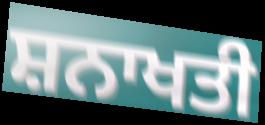
ਸ਼ਨਾਖਤੀ